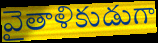
వైతాళికుడుగా